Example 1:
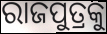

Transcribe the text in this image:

ରାଜପୁତ୍ରକୁ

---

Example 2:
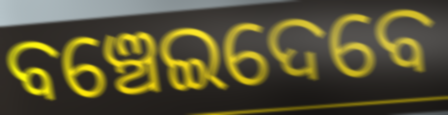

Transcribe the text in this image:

ବଞ୍ଚେଇଦେବେ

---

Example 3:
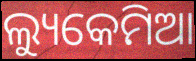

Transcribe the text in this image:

ଲ୍ୟୁକେମିଆ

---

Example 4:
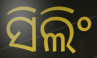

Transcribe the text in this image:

ସିଲିଂ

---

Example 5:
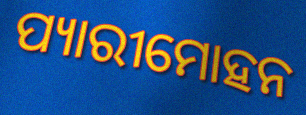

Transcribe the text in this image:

ପ୍ୟାରୀମୋହନ